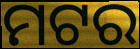
ମଟର